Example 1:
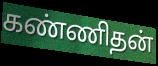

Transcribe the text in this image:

கண்ணிதன்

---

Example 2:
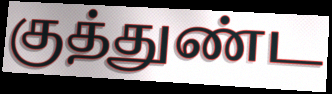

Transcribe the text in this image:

குத்துண்ட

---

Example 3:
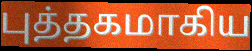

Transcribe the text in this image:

புத்தகமாகிய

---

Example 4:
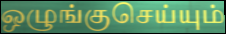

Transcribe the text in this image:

ஒழுங்குசெய்யும்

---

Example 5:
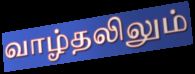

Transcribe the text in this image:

வாழ்தலிலும்